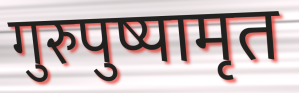
गुरुपुष्यामृत